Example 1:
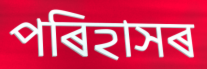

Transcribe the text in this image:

পৰিহাসৰ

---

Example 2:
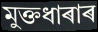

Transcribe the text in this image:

মুক্তধাৰাৰ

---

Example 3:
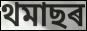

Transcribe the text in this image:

থমাছৰ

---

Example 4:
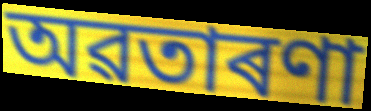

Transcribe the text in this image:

অৱতাৰণা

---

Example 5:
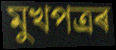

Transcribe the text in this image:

মুখপত্ৰৰ